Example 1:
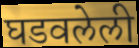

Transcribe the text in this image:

घडवलेली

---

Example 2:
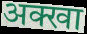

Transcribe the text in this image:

अक्खा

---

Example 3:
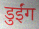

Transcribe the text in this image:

डुईंग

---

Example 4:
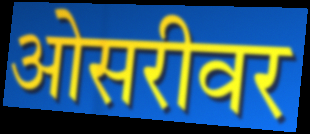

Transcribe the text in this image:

ओसरीवर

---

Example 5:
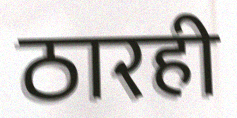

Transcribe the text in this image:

ठारही